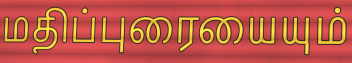
மதிப்புரையையும்